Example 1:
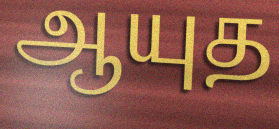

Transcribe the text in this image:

ஆயுத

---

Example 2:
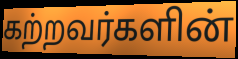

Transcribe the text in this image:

கற்றவர்களின்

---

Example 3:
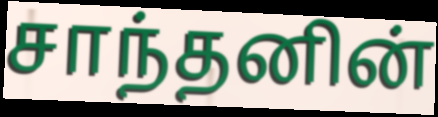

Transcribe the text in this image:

சாந்தனின்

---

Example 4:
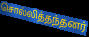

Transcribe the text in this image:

சொல்லித்தந்தனர்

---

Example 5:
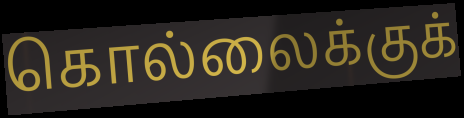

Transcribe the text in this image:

கொல்லைக்குக்